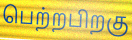
பெற்றபிறகு